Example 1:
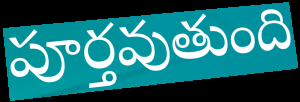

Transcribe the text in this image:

పూర్తవుతుంది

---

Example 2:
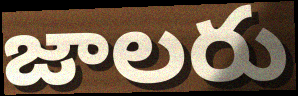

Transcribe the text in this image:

జాలరు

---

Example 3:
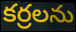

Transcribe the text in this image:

కర్రలను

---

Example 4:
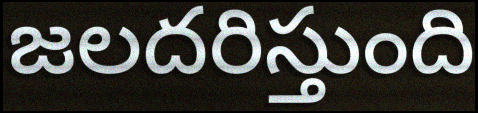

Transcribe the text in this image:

జలదరిస్తుంది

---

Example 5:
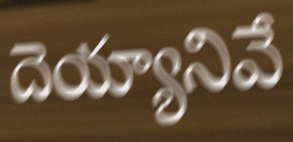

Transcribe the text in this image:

దెయ్యానివే